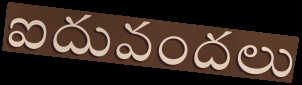
ఐదువందలు